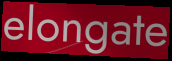
elongate